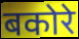
बकोरे